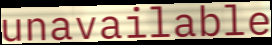
unavailable